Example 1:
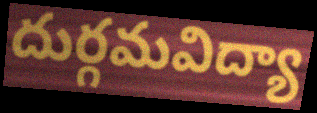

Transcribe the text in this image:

దుర్గమవిద్యా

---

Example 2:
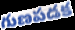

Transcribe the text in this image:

గుణపడక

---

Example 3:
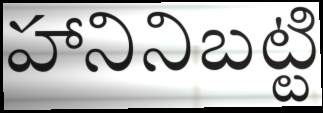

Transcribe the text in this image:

హానినిబట్టి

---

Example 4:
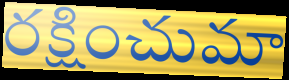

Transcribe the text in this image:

రక్షించుమా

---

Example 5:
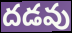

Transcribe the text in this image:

దడవు